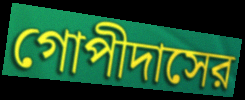
গোপীদাসের